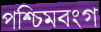
পশ্চিমবংগ